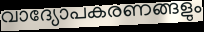
വാദ്യോപകരണങ്ങളും